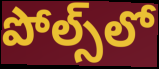
పోల్స్‌లో